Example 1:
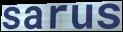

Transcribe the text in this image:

sarus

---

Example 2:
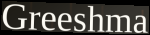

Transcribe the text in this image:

Greeshma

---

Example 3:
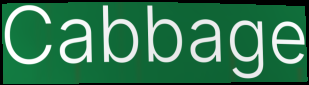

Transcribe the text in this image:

Cabbage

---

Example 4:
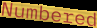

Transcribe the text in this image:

Numbered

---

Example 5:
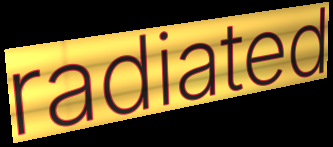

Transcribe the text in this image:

radiated